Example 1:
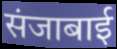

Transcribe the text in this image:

संजाबाई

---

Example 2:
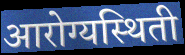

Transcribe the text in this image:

आरोग्यस्थिती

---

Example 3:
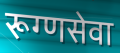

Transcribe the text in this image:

रूग्णसेवा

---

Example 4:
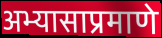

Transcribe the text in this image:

अभ्यासाप्रमाणे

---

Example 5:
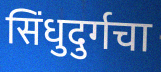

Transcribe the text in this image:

सिंधुदुर्गचा